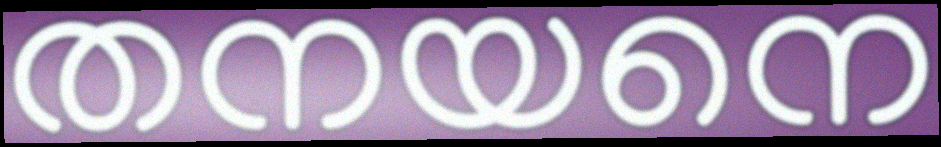
തനയനെ